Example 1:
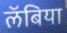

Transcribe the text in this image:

लॅबिया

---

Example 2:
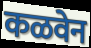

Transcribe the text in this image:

कळवेन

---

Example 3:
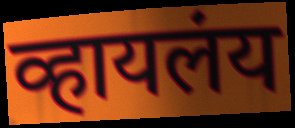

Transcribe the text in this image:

व्हायलंय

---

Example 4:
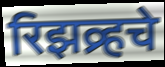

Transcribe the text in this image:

रिझव्र्हचे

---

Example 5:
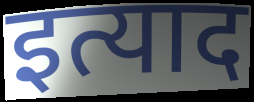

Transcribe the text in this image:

इत्याद